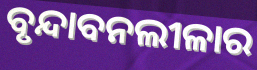
ବୃନ୍ଦାବନଲୀଳାର